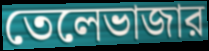
তেলেভাজার